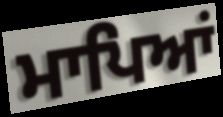
ਮਾਪਿਆਂ